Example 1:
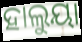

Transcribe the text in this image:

ହାଲୁୟା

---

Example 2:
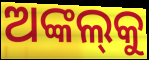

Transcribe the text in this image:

ଅଙ୍କଲ୍‌କୁ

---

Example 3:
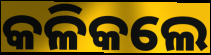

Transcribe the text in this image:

କଳିକଲେ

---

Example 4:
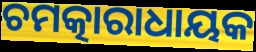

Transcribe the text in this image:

ଚମତ୍କାରାଧାୟକ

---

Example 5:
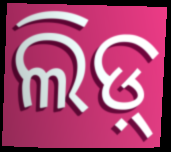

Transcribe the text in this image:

ଲିଡ଼୍